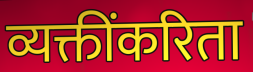
व्यक्तींकरिता